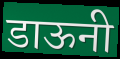
डाऊनी